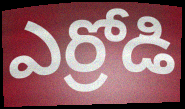
ఎర్రోడి